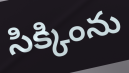
సిక్కింను